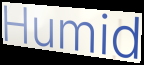
Humid